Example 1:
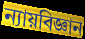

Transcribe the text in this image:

ন্যায়বিজ্ঞান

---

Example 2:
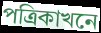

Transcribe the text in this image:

পত্ৰিকাখনে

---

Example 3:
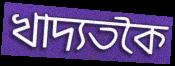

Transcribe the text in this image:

খাদ্যতকৈ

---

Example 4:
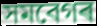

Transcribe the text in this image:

সমবেগৰ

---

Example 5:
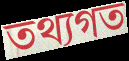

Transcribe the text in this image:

তথ্যগত